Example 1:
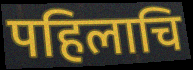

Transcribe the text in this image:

पहिलाचि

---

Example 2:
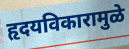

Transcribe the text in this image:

हृदयविकारामुळे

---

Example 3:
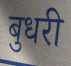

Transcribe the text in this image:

बुधरी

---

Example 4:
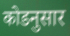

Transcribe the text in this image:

कोडनुसार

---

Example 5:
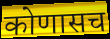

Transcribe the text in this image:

कोणासच